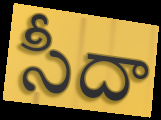
సీదా